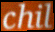
chil